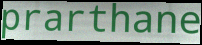
prarthane